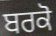
ਬਰਕੋ